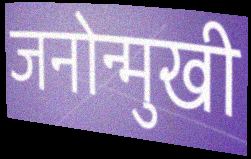
जनोन्मुखी